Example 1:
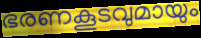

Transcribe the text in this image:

ഭരണകൂടവുമായും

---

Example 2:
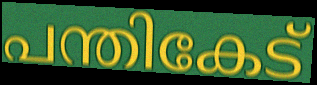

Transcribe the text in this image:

പന്തികേട്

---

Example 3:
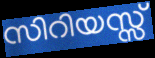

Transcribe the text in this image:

സിറിയസ്സ്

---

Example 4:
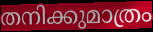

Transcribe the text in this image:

തനിക്കുമാത്രം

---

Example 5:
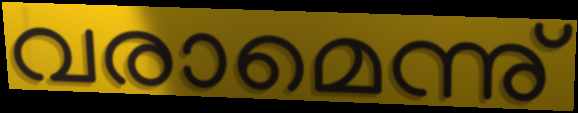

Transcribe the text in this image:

വരാമെന്നു്